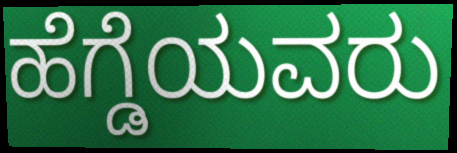
ಹೆಗ್ಡೆಯವರು